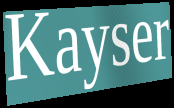
Kayser